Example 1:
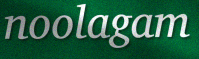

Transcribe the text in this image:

noolagam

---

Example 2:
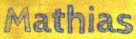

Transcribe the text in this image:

Mathias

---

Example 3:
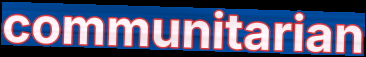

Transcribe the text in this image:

communitarian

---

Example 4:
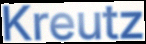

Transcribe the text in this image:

Kreutz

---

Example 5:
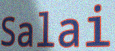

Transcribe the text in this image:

Salai